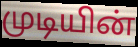
முடியின்